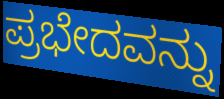
ಪ್ರಭೇದವನ್ನು